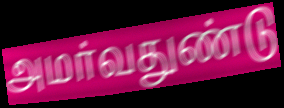
அமர்வதுண்டு